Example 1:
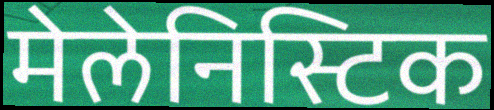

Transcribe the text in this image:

मेलेनिस्टिक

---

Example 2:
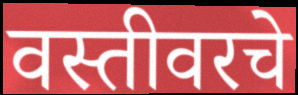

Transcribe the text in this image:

वस्तीवरचे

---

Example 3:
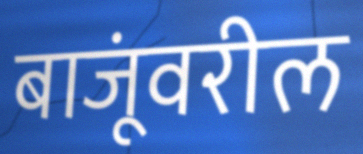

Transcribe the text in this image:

बाजूंवरील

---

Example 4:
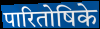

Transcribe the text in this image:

पारितोषिके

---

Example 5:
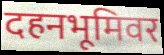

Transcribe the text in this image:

दहनभूमिवर